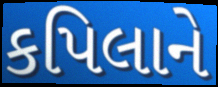
કપિલાને